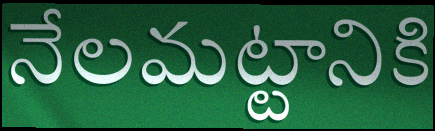
నేలమట్టానికి